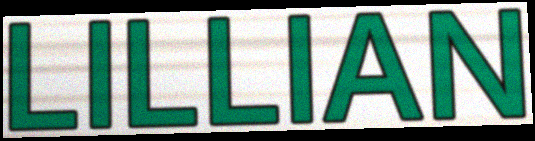
LILLIAN